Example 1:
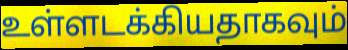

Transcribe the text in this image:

உள்ளடக்கியதாகவும்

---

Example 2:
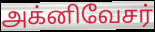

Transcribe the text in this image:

அக்னிவேசர்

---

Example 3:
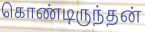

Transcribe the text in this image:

கொண்டிருந்தன்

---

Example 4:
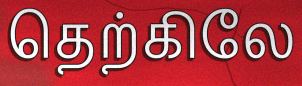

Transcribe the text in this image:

தெற்கிலே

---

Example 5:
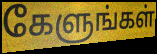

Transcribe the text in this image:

கேளுங்கள்